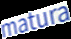
matura